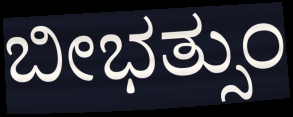
ಬೀಭತ್ಸುಂ